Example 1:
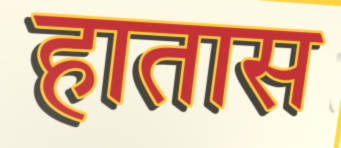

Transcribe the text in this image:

हातास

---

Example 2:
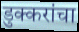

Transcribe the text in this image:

डुक्करांचा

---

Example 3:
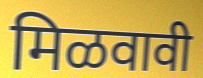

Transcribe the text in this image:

मिळवावी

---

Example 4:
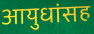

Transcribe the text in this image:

आयुधांसह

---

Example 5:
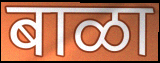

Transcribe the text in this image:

बाळा